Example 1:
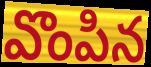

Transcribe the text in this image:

వొంపిన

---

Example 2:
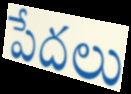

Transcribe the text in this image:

పేదలు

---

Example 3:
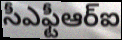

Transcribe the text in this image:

సీఎఫ్టీఆర్ఐ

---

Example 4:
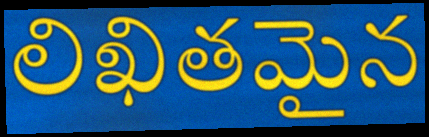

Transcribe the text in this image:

లిఖితమైన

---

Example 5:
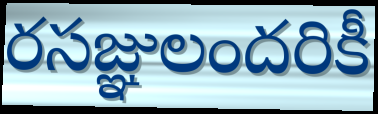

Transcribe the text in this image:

రసజ్ఞులందరికీ